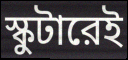
স্কুটারেই